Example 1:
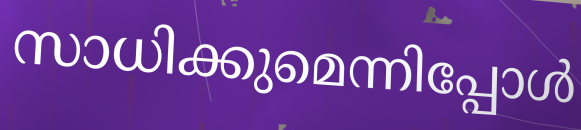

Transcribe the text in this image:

സാധിക്കുമെന്നിപ്പോൾ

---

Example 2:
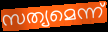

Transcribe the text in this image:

സത്യമെന്ന്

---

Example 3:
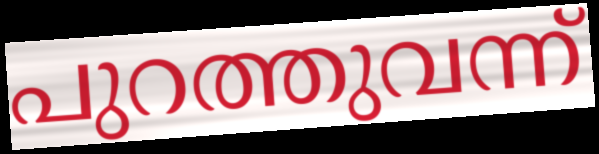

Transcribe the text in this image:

പുറത്തുവന്ന്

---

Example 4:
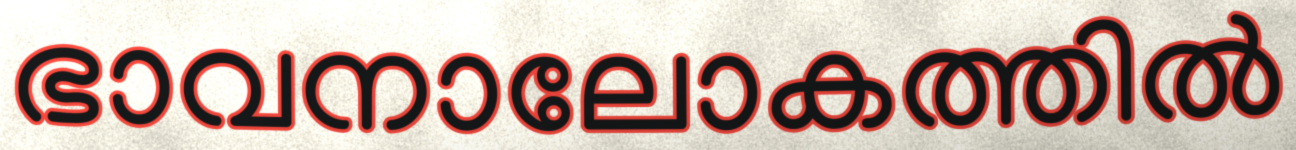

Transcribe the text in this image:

ഭാവനാലോകത്തിൽ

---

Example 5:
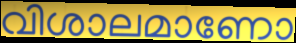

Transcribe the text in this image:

വിശാലമാണോ